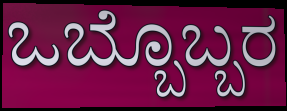
ಒಬ್ಬೊಬ್ಬರ